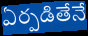
ఏర్పడితేనే